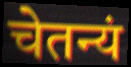
चेतन्यं